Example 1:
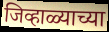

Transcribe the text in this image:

जिव्हाळ्याच्या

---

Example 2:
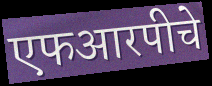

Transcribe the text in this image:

एफआरपीचे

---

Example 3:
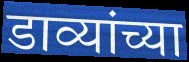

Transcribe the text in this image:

डाव्यांच्या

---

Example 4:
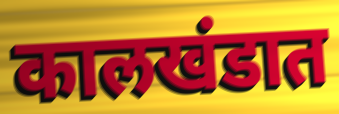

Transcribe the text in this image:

कालखंडात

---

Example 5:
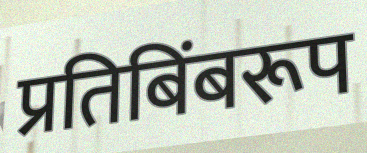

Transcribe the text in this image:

प्रतिबिंबरूप